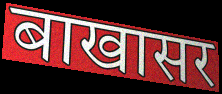
बाखासर